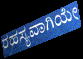
ರಹಸ್ಯವಾಗಿಯೇ